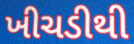
ખીચડીથી